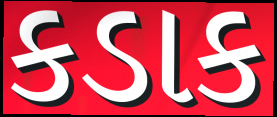
કડાક